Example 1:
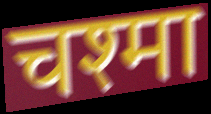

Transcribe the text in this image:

चश्मा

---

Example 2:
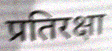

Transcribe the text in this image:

प्रतिरक्षा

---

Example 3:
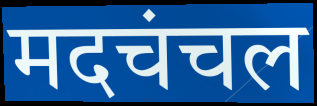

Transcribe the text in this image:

मदचंचल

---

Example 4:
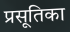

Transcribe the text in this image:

प्रसूतिका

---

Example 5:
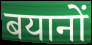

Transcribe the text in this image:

बयानों